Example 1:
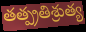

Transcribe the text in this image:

తత్ప్రతిశ్రుత్య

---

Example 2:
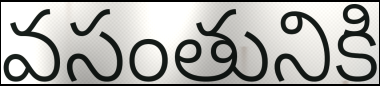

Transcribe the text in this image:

వసంతునికి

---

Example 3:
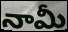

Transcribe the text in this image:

నామీ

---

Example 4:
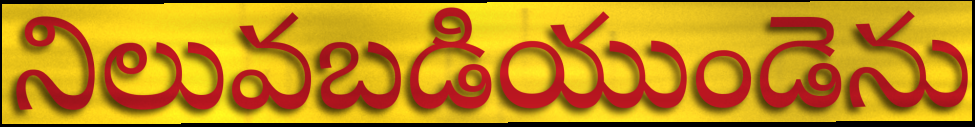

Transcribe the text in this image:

నిలువబడియుండెను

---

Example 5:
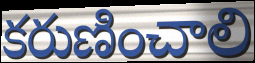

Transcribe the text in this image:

కరుణించాలి